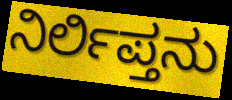
ನಿರ್ಲಿಪ್ತನು